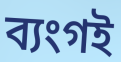
ব্যংগই